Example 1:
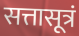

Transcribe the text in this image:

सत्तासूत्रं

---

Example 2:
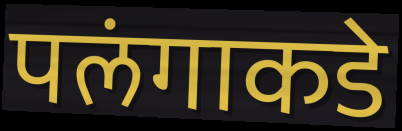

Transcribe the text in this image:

पलंगाकडे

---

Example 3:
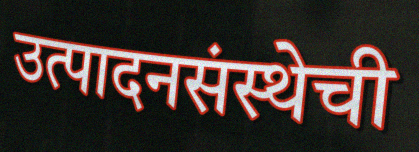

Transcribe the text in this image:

उत्पादनसंस्थेची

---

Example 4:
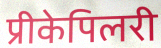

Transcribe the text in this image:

प्रीकेपिलरी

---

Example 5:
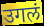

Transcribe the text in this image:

उगलं